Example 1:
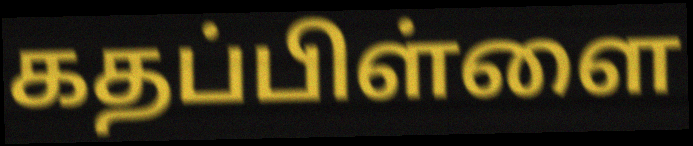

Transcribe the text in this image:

கதப்பிள்ளை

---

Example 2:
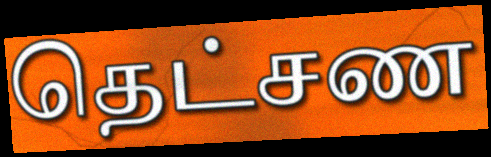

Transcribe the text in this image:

தெட்சண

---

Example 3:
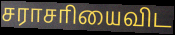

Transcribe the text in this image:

சராசரியைவிட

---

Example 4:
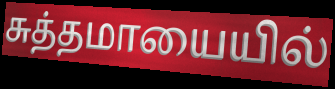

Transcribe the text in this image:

சுத்தமாயையில்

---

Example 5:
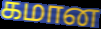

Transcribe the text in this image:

கமான